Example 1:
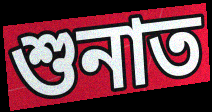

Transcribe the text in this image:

শুনাত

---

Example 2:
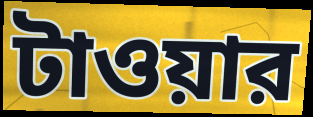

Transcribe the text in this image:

টাওয়ার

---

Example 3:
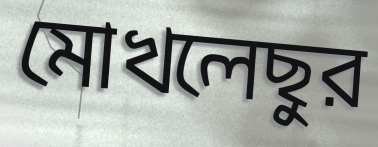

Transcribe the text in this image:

মোখলেছুর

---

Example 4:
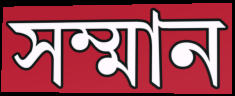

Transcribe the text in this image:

সম্মান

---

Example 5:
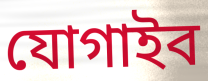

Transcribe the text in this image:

যোগাইব